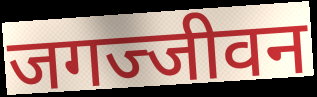
जगज्जीवन